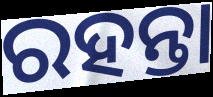
ରହନ୍ତା